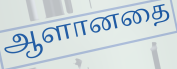
ஆளானதை